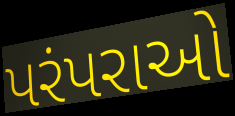
પરંપરાઓ